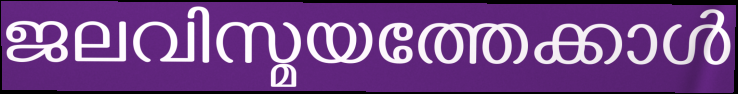
ജലവിസ്മയത്തേക്കാൾ